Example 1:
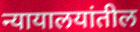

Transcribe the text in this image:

न्यायालयांतील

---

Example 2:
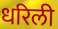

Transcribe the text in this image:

धरिली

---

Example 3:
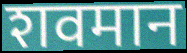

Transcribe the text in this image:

शवमान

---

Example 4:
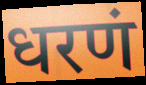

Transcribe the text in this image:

धरणं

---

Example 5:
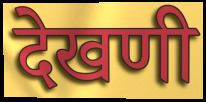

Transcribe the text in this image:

देखणी